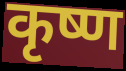
कृष्ण